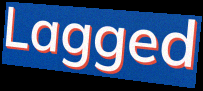
Lagged